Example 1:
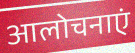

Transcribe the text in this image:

आलोचनाएं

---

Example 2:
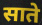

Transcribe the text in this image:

साते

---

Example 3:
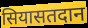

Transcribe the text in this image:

सियासतदान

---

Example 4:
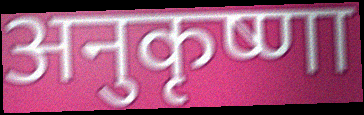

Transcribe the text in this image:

अनुकृष्णा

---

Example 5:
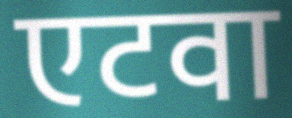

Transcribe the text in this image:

एटवा